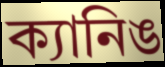
ক্যানিঙ